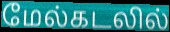
மேல்கடலில்